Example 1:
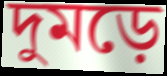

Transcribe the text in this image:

দুমড়ে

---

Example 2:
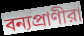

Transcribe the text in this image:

বন্যপ্রাণীরা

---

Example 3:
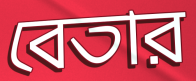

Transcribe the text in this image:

বেতার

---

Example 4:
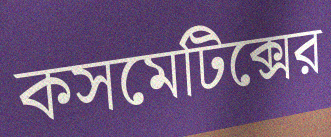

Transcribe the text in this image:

কসমেটিক্সের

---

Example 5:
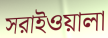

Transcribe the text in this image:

সরাইওয়ালা